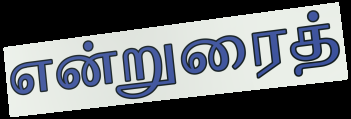
என்றுரைத்